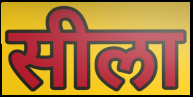
सीला